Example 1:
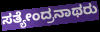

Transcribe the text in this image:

ಸತ್ಯೇಂದ್ರನಾಥರು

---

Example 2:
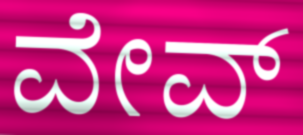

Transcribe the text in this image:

ವೇವ್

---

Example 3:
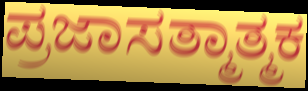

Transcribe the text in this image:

ಪ್ರಜಾಸತ್ಮಾತ್ಮಕ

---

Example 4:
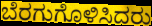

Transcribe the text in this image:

ಬೆರಗುಗೊಳಿಸಿದರು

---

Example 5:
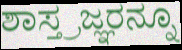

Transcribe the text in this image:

ಶಾಸ್ತ್ರಜ್ಞರನ್ನೂ